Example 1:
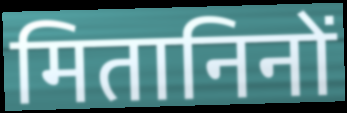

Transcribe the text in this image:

मितानिनों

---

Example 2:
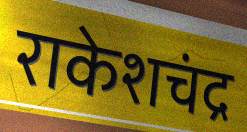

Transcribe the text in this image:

राकेशचंद्र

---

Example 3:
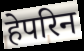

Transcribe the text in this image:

हेपरिन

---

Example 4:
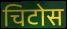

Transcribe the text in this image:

चिटोस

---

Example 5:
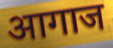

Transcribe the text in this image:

आगाज